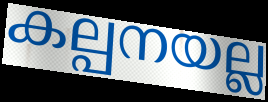
കല്പനയല്ല